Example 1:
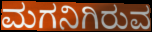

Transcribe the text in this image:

ಮಗನಿಗಿರುವ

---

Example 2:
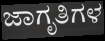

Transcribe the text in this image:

ಜಾಗೃತಿಗಳ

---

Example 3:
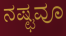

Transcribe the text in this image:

ನಷ್ಟವೂ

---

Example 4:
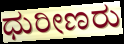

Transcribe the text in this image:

ಧುರೀಣರು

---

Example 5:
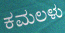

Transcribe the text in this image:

ಕಮಲಳು